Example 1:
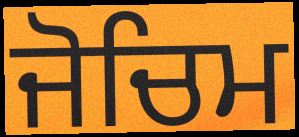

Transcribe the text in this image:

ਜੋਚਿਮ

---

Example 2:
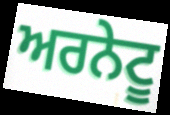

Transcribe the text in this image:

ਅਰਨੇਟੂ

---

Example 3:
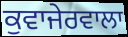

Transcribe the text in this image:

ਕੁਵਾਜੇਰਵਾਲਾ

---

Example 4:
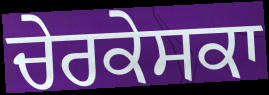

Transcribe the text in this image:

ਚੇਰਕੇਸਕਾ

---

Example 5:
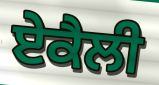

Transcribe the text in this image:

ਏਕੈਲੀ